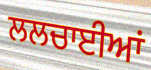
ਲਲਚਾਈਆਂ